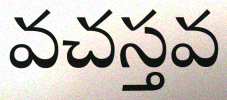
వచస్తవ